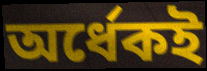
অর্ধেকই